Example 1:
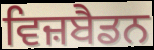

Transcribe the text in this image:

ਵਿਜ਼ਬੈਡਨ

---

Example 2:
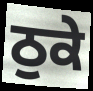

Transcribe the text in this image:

ਠੁਕੇ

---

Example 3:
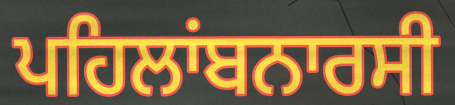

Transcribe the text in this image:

ਪਹਿਲਾਂਬਨਾਰਸੀ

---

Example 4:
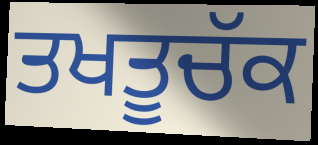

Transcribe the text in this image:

ਤਖਤੂਚੱਕ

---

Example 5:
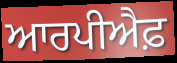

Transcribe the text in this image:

ਆਰਪੀਐਫ਼